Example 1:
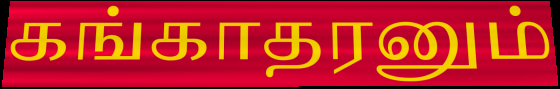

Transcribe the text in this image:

கங்காதரனும்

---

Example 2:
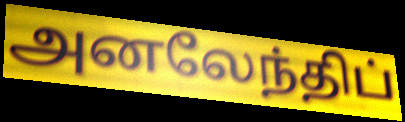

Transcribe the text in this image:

அனலேந்திப்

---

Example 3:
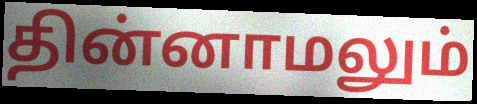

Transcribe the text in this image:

தின்னாமலும்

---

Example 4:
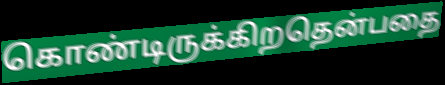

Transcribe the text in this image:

கொண்டிருக்கிறதென்பதை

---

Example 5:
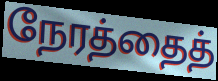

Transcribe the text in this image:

நேரத்தைத்